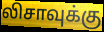
லிசாவுக்கு